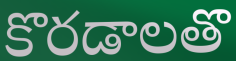
కొరడాలతొ